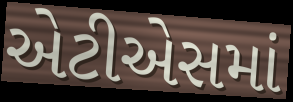
એટીએસમાં